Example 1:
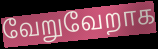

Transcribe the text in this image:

வேறுவேறாக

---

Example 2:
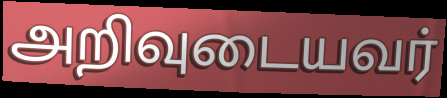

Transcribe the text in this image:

அறிவுடையவர்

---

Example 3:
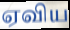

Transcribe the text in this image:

ஏவிய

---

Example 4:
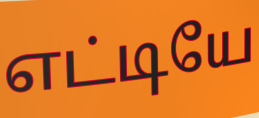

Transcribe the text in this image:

எட்டியே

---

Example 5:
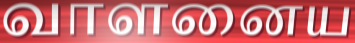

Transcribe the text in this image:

வாளனைய